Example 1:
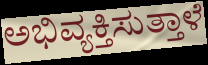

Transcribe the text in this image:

ಅಭಿವ್ಯಕ್ತಿಸುತ್ತಾಳೆ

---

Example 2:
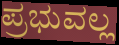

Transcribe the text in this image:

ಪ್ರಭುವಲ್ಲ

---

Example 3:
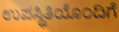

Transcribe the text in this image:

ಉಪಸ್ಥಿತಿಯೊಂದಿಗೆ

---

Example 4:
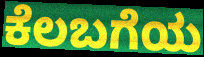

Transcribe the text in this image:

ಕೆಲಬಗೆಯ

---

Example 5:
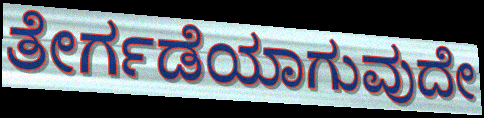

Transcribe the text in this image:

ತೇರ್ಗಡೆಯಾಗುವುದೇ